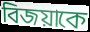
বিজয়াকে